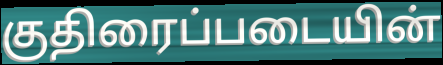
குதிரைப்படையின்